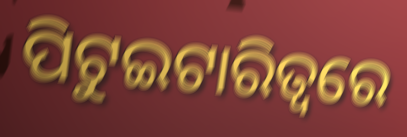
ପିଟୁଇଟାରିତ୍ୱରେ